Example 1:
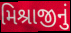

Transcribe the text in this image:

મિશ્રાજીનું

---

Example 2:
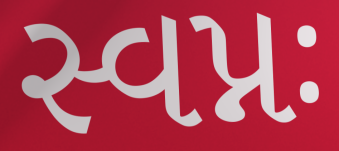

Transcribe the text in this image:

સ્વપ્નઃ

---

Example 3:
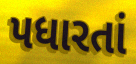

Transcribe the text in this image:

પધારતાં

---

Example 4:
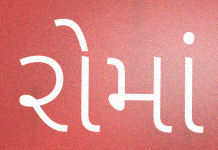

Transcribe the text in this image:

રોમાં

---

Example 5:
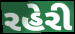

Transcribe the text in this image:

રહેરી